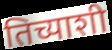
तिच्याशी